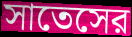
সাতেসের